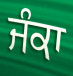
ਜੰਕਾ